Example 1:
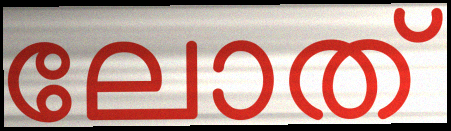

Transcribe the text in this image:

ലോത്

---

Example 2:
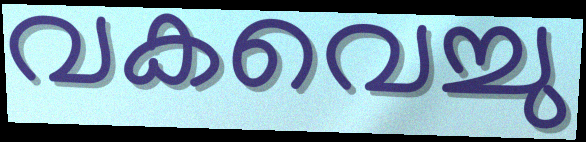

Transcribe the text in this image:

വകവെച്ചു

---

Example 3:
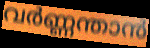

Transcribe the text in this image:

വർണ്ണന്താൻ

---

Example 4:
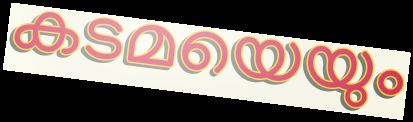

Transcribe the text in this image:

കടമയെയും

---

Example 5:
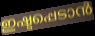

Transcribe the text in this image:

ഇഷ്ടപ്പെടാൻ